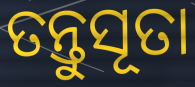
ତନ୍ତୁସୂତା